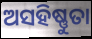
ଅସହିଷ୍ଣୁତା